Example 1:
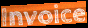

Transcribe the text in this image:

Invoice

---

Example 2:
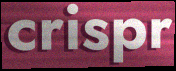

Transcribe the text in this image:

crispr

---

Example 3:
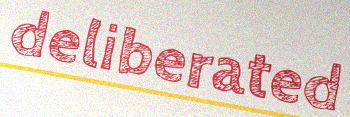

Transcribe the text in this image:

deliberated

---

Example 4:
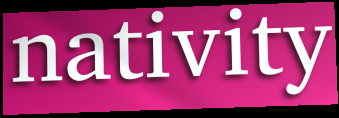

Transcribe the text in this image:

nativity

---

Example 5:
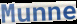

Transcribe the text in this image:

Munne